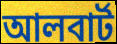
আলবার্ট